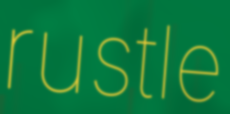
rustle